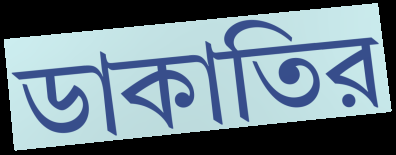
ডাকাতির